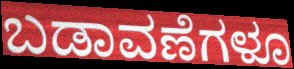
ಬಡಾವಣೆಗಳೂ